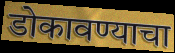
डोकावण्याचा